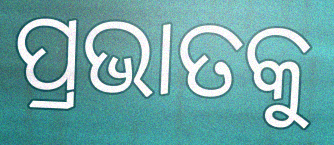
ପ୍ରଭାତକୁ